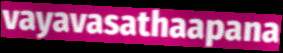
vayavasathaapana